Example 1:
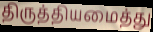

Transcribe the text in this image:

திருத்தியமைத்து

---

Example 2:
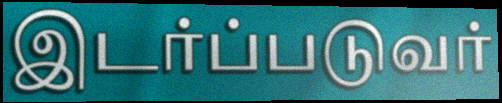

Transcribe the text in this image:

இடர்ப்படுவர்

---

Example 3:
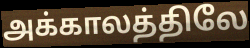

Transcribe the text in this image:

அக்காலத்திலே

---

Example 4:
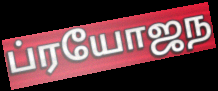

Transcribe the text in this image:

ப்ரயோஜந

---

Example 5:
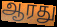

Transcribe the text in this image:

ஆரது